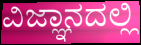
ವಿಜ್ಞಾನದಲ್ಲಿ